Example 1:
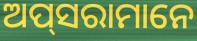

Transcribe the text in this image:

ଅପ୍‍ସରାମାନେ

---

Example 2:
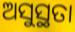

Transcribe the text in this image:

ଅସୁସ୍ଥତା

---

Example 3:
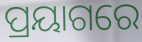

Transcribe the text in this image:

ପ୍ରୟାଗରେ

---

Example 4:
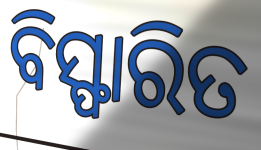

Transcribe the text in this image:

ବିସ୍ଫାରିତ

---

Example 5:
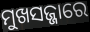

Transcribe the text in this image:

ମୁଖସଜ୍ଜାରେ